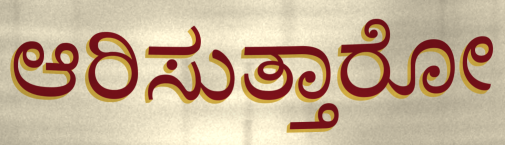
ಆರಿಸುತ್ತಾರೋ